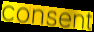
consent